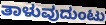
ತಾಳುವುದುಂಟು